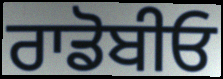
ਰਾਡੋਬੀਓ